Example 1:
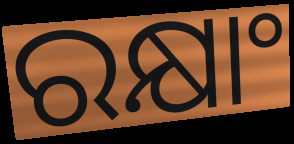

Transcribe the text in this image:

ରକ୍ଷାଂ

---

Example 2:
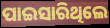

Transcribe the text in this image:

ପାଇସାରିଥିଲେ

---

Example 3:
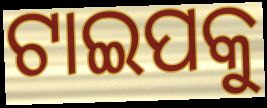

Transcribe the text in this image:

ଟାଇପକୁ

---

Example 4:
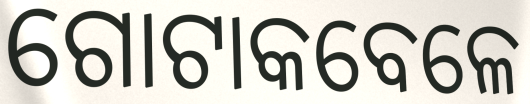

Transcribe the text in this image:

ଗୋଟାକବେଳେ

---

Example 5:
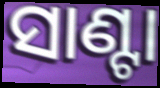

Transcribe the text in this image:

ସାଣ୍ଟା